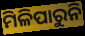
ମିଳିପାରୁନି